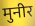
मुनीर